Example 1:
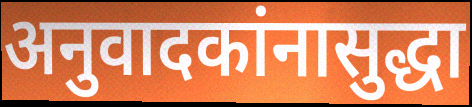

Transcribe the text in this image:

अनुवादकांनासुद्धा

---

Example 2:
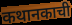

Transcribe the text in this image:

कथानकाची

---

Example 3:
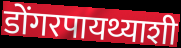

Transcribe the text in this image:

डोंगरपायथ्याशी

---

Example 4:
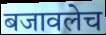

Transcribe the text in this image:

बजावलेच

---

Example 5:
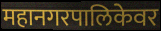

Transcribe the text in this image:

महानगरपालिकेवर